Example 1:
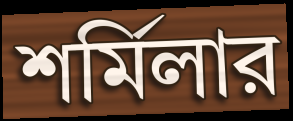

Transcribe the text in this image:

শর্মিলার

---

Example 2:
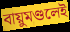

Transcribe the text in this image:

বায়ুমণ্ডলেই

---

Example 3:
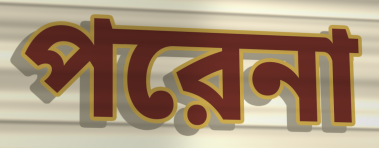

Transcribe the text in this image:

পরেনা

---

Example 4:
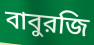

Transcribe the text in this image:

বাবুরজি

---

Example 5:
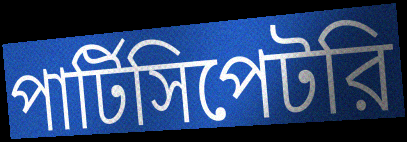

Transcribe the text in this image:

পার্টিসিপেটরি